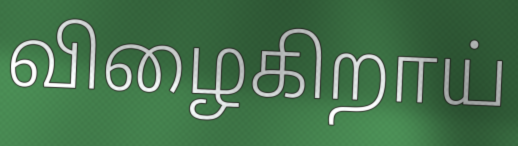
விழைகிறாய்